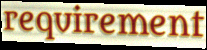
requirement